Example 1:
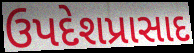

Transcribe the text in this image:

ઉપદેશપ્રાસાદ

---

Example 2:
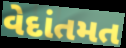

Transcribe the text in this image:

વેદાંતમત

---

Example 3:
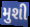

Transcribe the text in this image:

મુશી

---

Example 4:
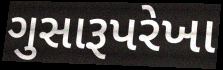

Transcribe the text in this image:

ગુસારૂપરેખા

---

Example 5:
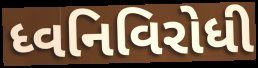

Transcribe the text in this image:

ધ્વનિવિરોધી